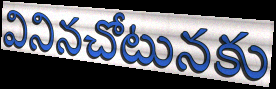
వినినచోటునకు